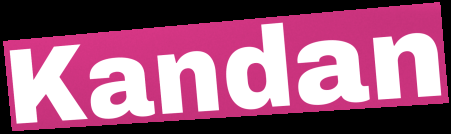
Kandan